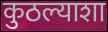
कुठल्याशा